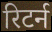
रिटर्न